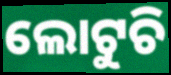
ଲୋଟୁଚି